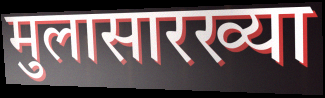
मुलासारख्या